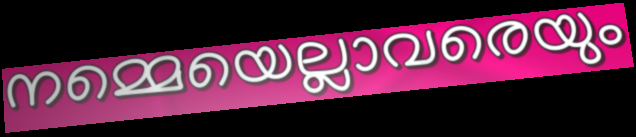
നമ്മെയെല്ലാവരെയും